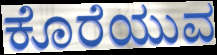
ಕೊರೆಯುವ